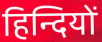
हिन्दियों